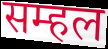
सम्हल